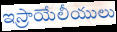
ఇస్రాయేలీయులు